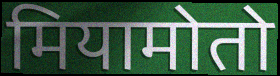
मियामोतो